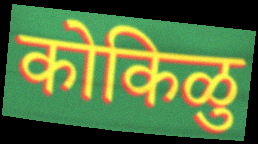
कोकिळु